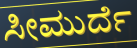
ಸೀಮುರ್ದೆ